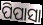
ପିପାସା